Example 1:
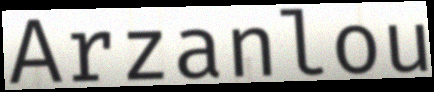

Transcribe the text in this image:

Arzanlou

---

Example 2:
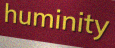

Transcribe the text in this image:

huminity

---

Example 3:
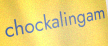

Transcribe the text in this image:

chockalingam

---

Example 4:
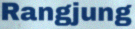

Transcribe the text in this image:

Rangjung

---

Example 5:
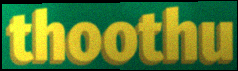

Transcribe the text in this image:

thoothu